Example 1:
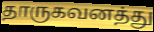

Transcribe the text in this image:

தாருகவனத்து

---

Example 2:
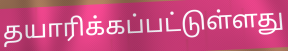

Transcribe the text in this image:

தயாரிக்கப்பட்டுள்ளது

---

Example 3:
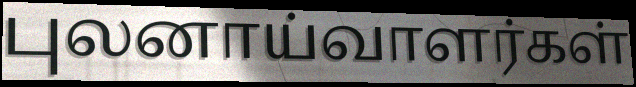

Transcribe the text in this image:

புலனாய்வாளர்கள்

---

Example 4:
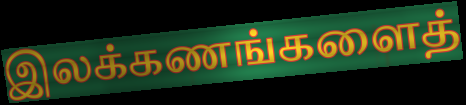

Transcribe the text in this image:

இலக்கணங்களைத்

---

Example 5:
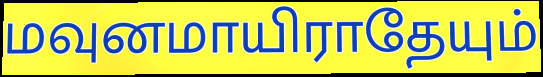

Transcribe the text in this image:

மவுனமாயிராதேயும்